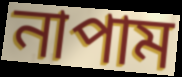
নাপাম